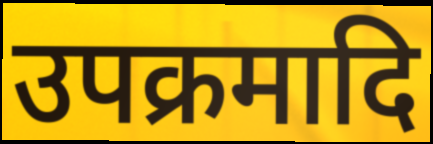
उपक्रमादि